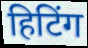
हिटिंग